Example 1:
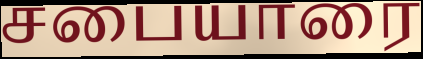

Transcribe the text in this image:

சபையாரை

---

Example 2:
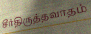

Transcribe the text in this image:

சீர்திருத்தவாதம்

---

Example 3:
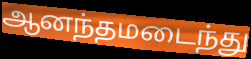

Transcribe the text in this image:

ஆனந்தமடைந்து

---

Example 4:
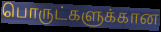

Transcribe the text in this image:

பொருட்களுக்கான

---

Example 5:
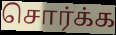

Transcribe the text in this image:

சொர்க்க